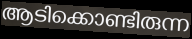
ആടിക്കൊണ്ടിരുന്ന